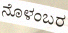
ನೊಳಂಬರ